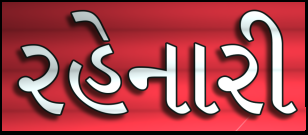
રહેનારી